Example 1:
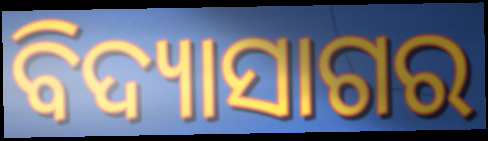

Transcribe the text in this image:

ବିଦ୍ୟାସାଗର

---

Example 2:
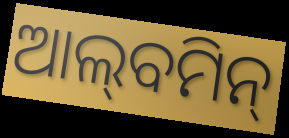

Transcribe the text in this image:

ଆଲ୍‌ବମିନ୍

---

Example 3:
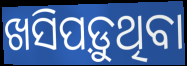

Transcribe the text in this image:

ଖସିପଡ଼ୁଥିବା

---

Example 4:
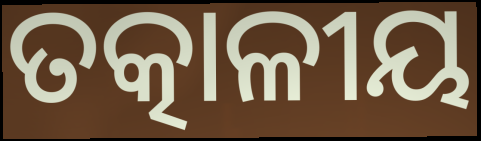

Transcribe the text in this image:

ତତ୍କାଳୀୟ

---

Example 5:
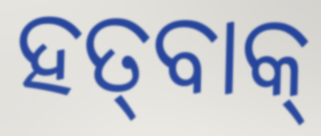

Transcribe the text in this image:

ହତ୍‌ବାକ୍